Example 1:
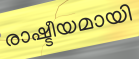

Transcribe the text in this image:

രാഷ്ടീയമായി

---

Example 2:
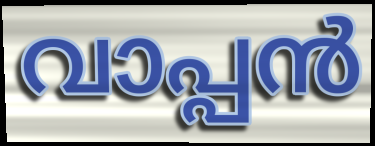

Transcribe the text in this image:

വാപ്പൻ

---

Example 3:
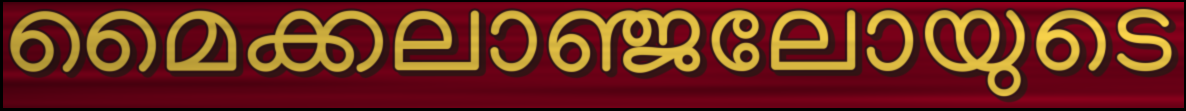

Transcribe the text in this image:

മൈക്കലാഞ്ജലോയുടെ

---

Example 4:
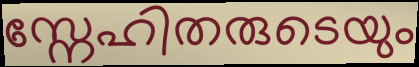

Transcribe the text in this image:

സ്നേഹിതരുടെയും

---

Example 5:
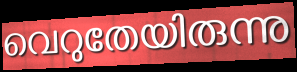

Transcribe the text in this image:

വെറുതേയിരുന്നു